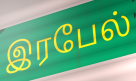
இரபேல்